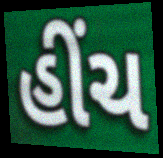
હીંચ